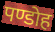
पण्डोह